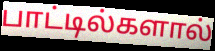
பாட்டில்களால்